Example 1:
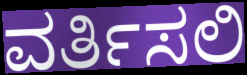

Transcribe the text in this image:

ವರ್ತಿಸಲಿ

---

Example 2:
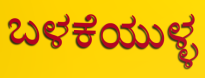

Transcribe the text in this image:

ಬಳಕೆಯುಳ್ಳ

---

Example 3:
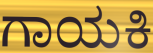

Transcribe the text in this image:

ಗಾಯಕಿ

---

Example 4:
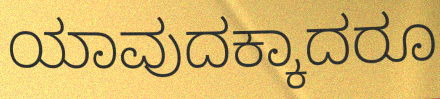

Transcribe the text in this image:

ಯಾವುದಕ್ಕಾದರೂ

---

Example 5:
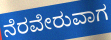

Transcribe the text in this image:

ನೆರವೇರುವಾಗ